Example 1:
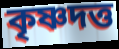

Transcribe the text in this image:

কৃষ্ণদত্ত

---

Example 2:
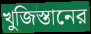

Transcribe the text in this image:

খুজিস্তানের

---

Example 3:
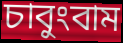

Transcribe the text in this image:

চাবুংবাম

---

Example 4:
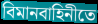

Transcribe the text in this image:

বিমানবাহিনীতে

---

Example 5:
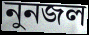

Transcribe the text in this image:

নুনজল